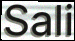
Sali